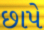
છાપે